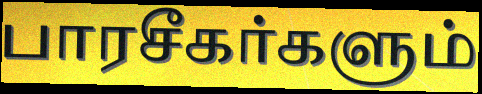
பாரசீகர்களும்